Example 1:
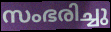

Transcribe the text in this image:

സംഭരിച്ചു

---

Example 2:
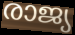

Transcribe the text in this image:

രാജ്യ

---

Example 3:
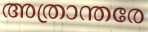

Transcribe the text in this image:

അത്രാന്തരേ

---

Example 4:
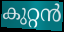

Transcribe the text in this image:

കുറ്റൻ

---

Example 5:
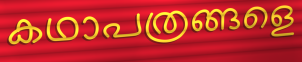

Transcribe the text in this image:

കഥാപത്രങ്ങളെ